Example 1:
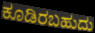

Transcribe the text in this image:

ಕೂಡಿರಬಹುದು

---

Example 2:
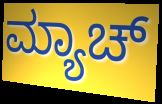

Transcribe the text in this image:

ಮ್ಯಾಚ್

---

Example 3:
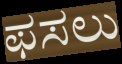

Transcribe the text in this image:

ಫಸಲು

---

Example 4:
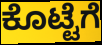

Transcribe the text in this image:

ಕೊಟ್ಟೆಗೆ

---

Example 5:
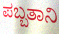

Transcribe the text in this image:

ಪಬ್ಬತಾನಿ